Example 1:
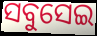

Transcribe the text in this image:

ସବୁସେଇ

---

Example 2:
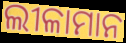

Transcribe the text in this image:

ଲୀଳାମାନ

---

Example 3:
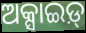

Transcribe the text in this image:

ଅକ୍ସାଇଡ଼୍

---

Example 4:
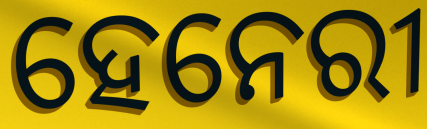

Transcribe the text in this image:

ହେନେରୀ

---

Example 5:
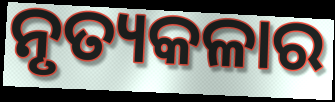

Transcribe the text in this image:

ନୃତ୍ୟକଳାର